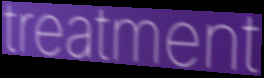
treatment